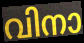
വിനാ